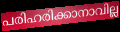
പരിഹരിക്കാനാവില്ല